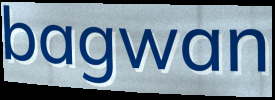
bagwan